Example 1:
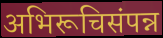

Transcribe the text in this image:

अभिरूचिसंपन्न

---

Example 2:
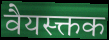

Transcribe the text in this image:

वैयस्क्तक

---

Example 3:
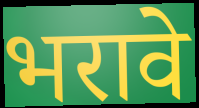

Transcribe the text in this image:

भरावे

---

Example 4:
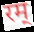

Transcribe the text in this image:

रम्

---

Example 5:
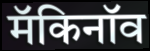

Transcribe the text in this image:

मॅकिनॉव